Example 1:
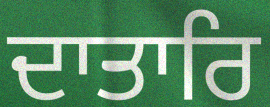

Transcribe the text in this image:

ਦਾਤਾਰਿ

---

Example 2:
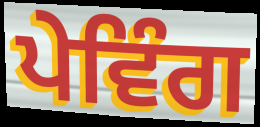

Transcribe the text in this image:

ਪੇਵਿੰਗ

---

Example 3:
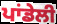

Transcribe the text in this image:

ਪਾਂਡੇਲੀ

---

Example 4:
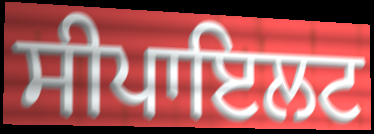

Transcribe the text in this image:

ਸੀਪਾਇਲਟ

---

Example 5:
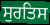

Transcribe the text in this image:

ਸੁਰਤਿਸ